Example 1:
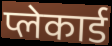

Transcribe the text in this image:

प्‍लेकार्ड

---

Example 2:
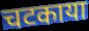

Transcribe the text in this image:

चटकाया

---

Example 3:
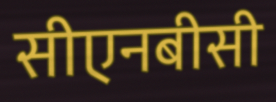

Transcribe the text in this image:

सीएनबीसी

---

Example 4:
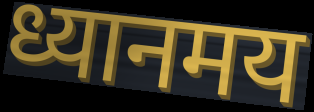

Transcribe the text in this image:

ध्यानमय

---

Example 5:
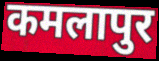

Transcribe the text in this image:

कमलापुर